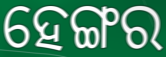
ହେଙ୍ଗର